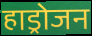
हाड्रोजन